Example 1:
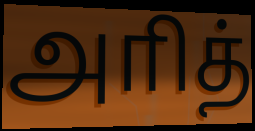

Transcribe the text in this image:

அரித்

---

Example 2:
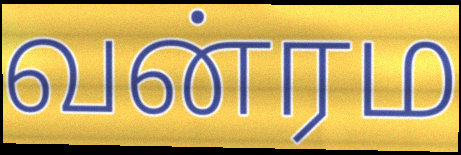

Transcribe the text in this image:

வன்ரம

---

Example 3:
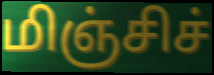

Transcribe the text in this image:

மிஞ்சிச்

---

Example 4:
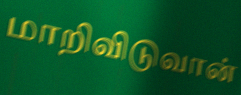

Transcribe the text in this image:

மாறிவிடுவான்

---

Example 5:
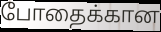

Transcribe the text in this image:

போதைக்கான